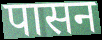
पासन